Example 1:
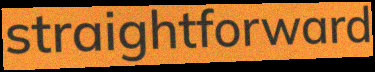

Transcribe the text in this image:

straightforward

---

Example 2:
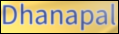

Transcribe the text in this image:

Dhanapal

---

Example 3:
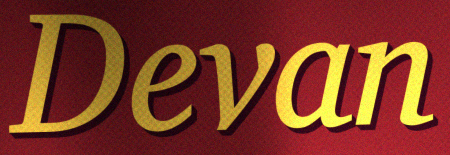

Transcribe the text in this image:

Devan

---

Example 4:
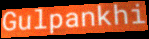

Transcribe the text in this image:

Gulpankhi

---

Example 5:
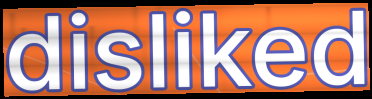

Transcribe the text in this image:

disliked